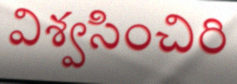
విశ్వసించిరి